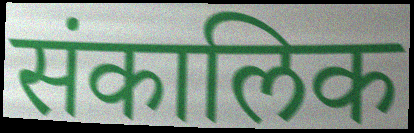
संकालिक